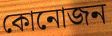
কোনোজন